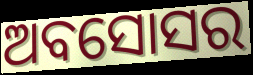
ଅବସୋସର